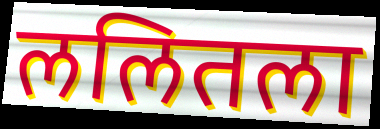
ललितला